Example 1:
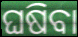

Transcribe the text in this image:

ଘଷିବା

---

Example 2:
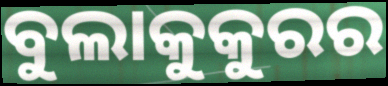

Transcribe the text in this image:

ବୁଲାକୁକୁରର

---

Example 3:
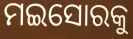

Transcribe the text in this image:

ମଇସୋରକୁ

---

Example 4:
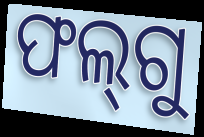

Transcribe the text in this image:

ଫଲ୍‌ଗୁ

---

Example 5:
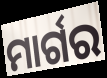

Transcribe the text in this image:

ମାର୍ଗର